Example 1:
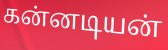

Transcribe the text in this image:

கன்னடியன்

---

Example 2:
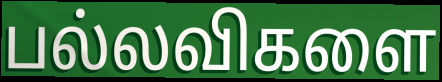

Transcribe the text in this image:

பல்லவிகளை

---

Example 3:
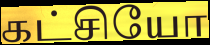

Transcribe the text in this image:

கட்சியோ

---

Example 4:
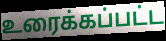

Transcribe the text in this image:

உரைக்கப்பட்ட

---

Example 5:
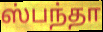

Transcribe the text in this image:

ஸ்பந்தா